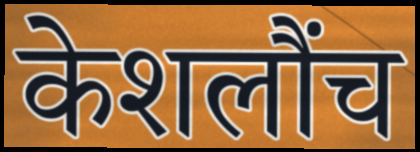
केशलौंच